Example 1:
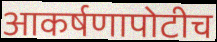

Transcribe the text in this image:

आकर्षणापोटीच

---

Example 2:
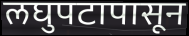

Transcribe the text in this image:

लघुपटापासून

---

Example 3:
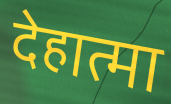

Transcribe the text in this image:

देहात्मा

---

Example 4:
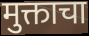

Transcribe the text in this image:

मुक्ताचा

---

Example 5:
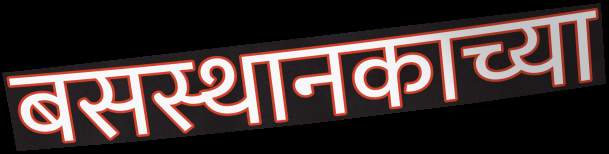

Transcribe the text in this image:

बसस्थानकाच्या